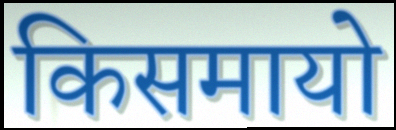
किसमायो